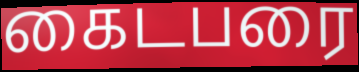
கைடபரை